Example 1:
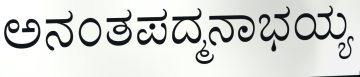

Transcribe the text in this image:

ಅನಂತಪದ್ಮನಾಭಯ್ಯ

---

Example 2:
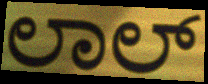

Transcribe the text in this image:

ಲಾಲ್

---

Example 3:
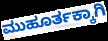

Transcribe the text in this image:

ಮುಹೂರ್ತಕ್ಕಾಗಿ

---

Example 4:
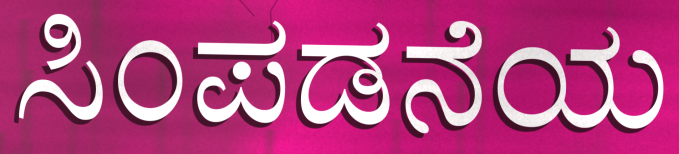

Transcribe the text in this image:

ಸಿಂಪಡನೆಯ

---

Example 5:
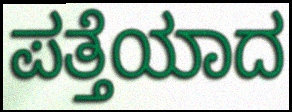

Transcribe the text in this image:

ಪತ್ತೆಯಾದ